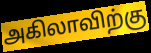
அகிலாவிற்கு